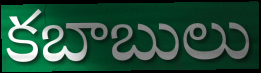
కబాబులు